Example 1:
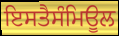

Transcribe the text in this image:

ਇਸਤੈਸੰਮਿਊਲ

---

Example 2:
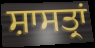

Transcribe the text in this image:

ਸ਼ਾਸਤ੍ਰਾਂ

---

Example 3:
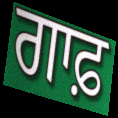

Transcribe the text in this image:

ਗਾਫ਼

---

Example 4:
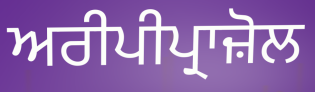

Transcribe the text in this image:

ਅਰੀਪੀਪ੍ਰਾਜ਼ੋਲ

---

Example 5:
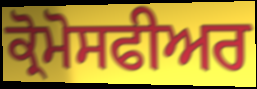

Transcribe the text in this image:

ਕ੍ਰੋਮੋਸਫੀਅਰ